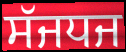
ਸੱਜਧਜ